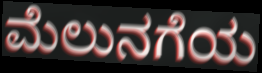
ಮೆಲುನಗೆಯ